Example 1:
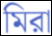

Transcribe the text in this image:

মিরা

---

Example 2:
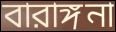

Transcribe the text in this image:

বারাঙ্গনা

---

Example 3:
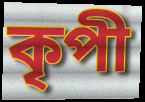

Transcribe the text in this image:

কৃপী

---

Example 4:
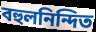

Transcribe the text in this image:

বহুলনিন্দিত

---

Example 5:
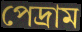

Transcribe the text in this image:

পেদ্রাম